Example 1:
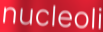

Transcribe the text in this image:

nucleoli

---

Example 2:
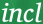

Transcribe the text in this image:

incl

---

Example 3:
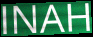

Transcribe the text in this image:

INAH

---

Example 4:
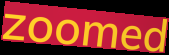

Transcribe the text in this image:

zoomed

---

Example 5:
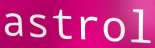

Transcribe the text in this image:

astrol